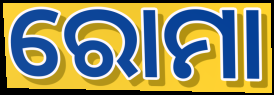
ରୋମା